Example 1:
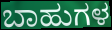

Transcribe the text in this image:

ಬಾಹುಗಳ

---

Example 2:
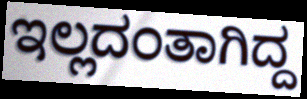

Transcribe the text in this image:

ಇಲ್ಲದಂತಾಗಿದ್ದ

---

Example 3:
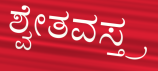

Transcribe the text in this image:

ಶ್ವೇತವಸ್ತ್ರ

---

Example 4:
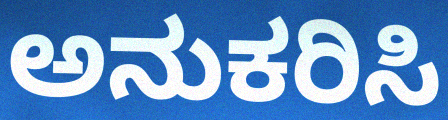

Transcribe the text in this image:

ಅನುಕರಿಸಿ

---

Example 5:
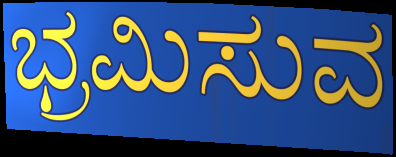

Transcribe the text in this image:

ಭ್ರಮಿಸುವ